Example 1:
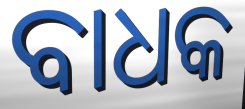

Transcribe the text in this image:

ବାଧକ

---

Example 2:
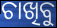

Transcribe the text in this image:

ଚାଖିବୁ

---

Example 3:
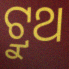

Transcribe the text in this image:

ଟ୍ରୁଥ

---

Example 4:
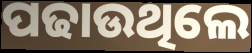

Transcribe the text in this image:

ପଢାଉଥିଲେ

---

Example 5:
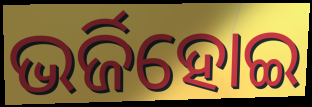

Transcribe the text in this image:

ଭର୍ଜିହୋଇ